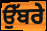
ਉੱਬਰੇ